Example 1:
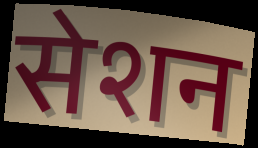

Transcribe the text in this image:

सेशन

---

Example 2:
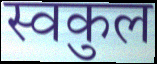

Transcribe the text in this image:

स्वकुल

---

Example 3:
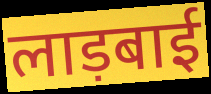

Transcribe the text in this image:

लाड़बाई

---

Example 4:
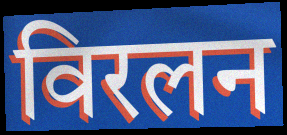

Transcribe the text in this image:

विरलन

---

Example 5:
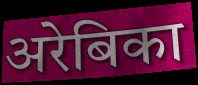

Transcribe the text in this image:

अरेबिका